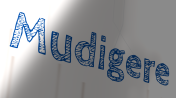
Mudigere